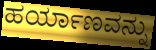
ಹರ್ಯಾಣವನ್ನು